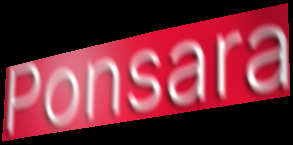
Ponsara